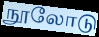
நூலோடு